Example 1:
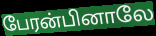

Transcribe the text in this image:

பேரன்பினாலே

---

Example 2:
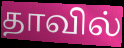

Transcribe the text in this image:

தாவில்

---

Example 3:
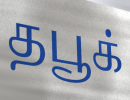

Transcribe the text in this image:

தபூக்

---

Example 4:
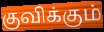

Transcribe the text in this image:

குவிக்கும்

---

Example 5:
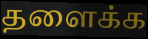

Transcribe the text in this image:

தளைக்க